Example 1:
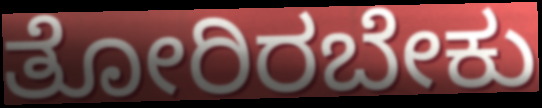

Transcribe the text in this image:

ತೋರಿರಬೇಕು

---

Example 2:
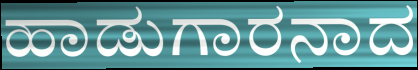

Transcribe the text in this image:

ಹಾಡುಗಾರನಾದ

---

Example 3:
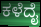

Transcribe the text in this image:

ಕಳೆದೈ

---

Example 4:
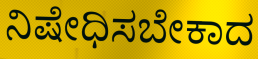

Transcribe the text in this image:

ನಿಷೇಧಿಸಬೇಕಾದ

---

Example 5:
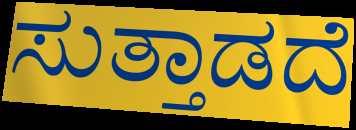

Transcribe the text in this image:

ಸುತ್ತಾಡದೆ